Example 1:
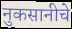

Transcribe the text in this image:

नुकसानीचे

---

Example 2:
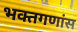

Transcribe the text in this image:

भक्तगणांस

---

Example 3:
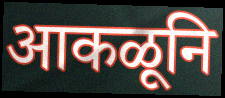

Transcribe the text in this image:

आकळूनि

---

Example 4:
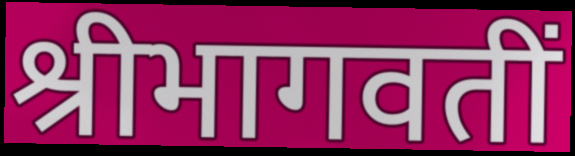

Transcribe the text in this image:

श्रीभागवतीं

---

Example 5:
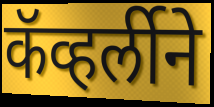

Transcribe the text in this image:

कॅव्हर्लीने